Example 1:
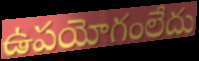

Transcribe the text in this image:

ఉపయోగంలేదు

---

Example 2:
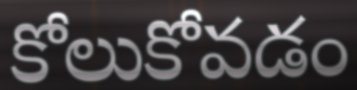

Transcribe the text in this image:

కోలుకోవడం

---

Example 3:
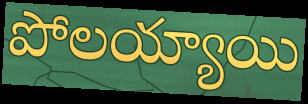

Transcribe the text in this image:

పోలయ్యాయి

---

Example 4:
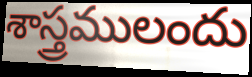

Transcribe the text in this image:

శాస్త్రములందు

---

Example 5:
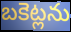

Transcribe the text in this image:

బకెట్లను